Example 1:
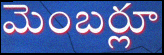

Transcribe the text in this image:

మెంబర్లూ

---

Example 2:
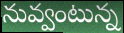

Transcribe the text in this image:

నువ్వంటున్న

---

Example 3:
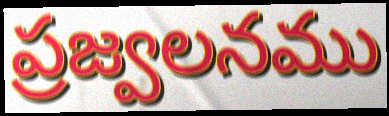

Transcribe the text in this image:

ప్రజ్వలనము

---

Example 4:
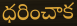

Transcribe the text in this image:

ధరించాక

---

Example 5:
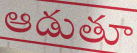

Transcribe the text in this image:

ఆడుతూ